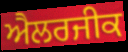
ਐਲਰਜੀਕ